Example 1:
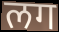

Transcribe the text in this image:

लग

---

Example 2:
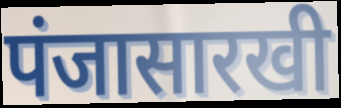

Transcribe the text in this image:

पंजासारखी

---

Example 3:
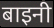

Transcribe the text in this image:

बाइनी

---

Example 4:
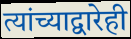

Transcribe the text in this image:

त्यांच्याद्वारेही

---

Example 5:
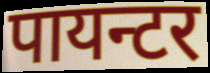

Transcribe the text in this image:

पायन्टर